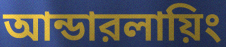
আন্ডারলায়িং